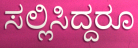
ಸಲ್ಲಿಸಿದ್ದರೂ